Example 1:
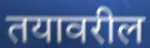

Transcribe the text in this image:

तयावरील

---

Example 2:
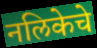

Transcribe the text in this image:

नलिकेचे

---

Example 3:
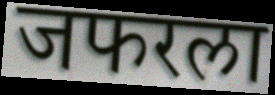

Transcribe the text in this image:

जफरला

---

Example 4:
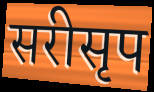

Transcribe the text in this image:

सरीसृप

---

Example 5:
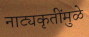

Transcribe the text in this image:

नाट्यकृतींमुळे